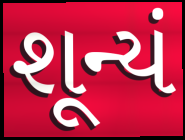
શૂન્યં